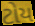
ટોય